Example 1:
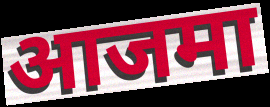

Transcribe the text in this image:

आजमा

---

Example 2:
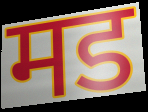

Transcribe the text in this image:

मड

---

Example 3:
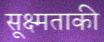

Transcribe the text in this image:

सूक्ष्मताकी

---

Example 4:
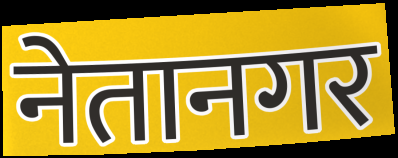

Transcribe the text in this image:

नेतानगर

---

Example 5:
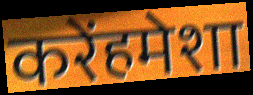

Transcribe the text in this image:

करेंहमेशा